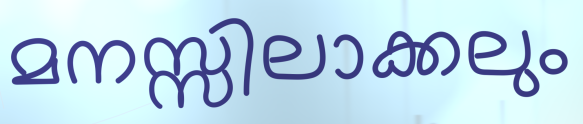
മനസ്സിലാക്കലും